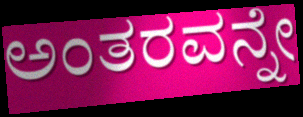
ಅಂತರವನ್ನೇ